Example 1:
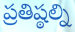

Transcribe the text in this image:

ప్రతిష్ఠల్ని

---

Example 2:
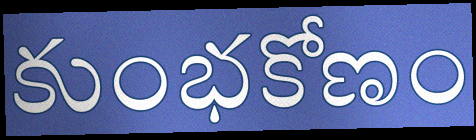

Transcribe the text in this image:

కుంభకోణం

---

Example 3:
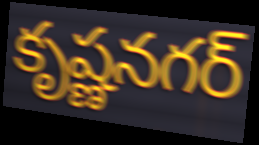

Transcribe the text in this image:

కృష్ణనగర్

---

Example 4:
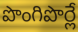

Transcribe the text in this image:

పొంగిపొర్లే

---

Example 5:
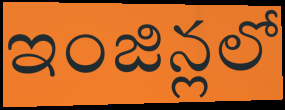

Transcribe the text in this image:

ఇంజిన్లలో